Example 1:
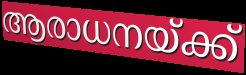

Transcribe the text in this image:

ആരാധനയ്ക്ക്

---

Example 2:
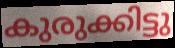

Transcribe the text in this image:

കുരുക്കിട്ടു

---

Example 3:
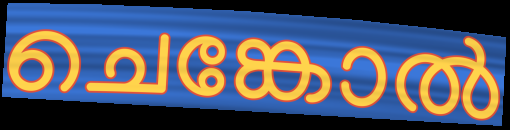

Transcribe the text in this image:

ചെങ്കോൽ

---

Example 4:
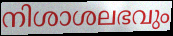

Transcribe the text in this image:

നിശാശലഭവും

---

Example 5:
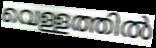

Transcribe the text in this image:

വെള്ളത്തിൽ